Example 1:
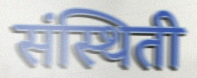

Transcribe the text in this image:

संस्थिती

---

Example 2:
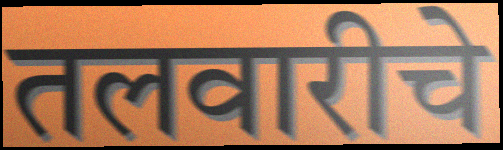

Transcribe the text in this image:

तलवारीचे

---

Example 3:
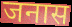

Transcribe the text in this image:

जनास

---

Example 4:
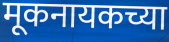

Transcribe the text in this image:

मूकनायकच्या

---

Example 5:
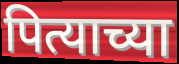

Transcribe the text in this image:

पित्याच्या